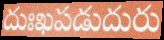
దుఃఖపడుదురు